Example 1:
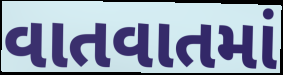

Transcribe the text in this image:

વાતવાતમાં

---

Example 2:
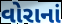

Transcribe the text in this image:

વોરાનાં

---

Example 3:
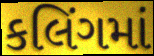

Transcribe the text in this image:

કલિંગમાં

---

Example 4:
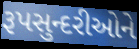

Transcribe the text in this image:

રૂપસુન્દરીઓને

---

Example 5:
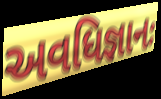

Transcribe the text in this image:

અવધિજ્ઞાનઃ